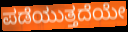
ಪಡೆಯುತ್ತದೆಯೇ